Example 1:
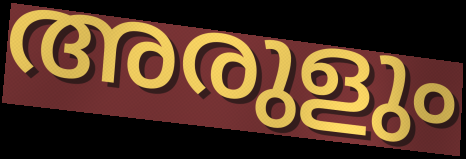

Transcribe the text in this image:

അരുളും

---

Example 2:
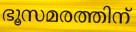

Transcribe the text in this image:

ഭൂസമരത്തിന്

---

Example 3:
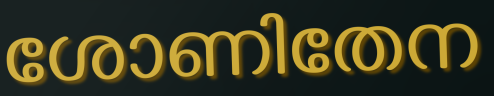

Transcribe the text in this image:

ശോണിതേന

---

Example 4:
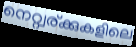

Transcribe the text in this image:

നെറ്റ്വര്ക്കുകളിലെ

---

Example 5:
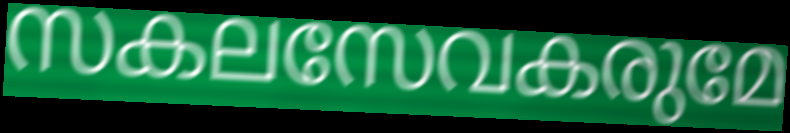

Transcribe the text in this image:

സകലസേവകരുമേ